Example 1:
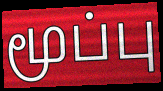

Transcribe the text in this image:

மூப்பு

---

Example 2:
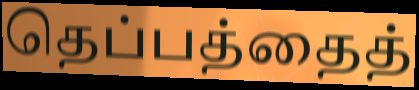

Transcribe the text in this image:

தெப்பத்தைத்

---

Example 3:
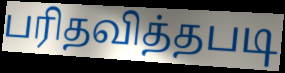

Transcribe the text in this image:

பரிதவித்தபடி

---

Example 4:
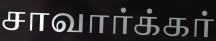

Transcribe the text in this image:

சாவார்க்கர்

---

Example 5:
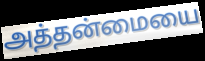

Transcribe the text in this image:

அத்தன்மையை